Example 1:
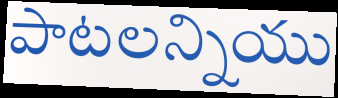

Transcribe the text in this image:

పాటలన్నియు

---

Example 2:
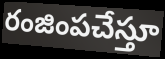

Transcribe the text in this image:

రంజింపచేస్తూ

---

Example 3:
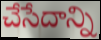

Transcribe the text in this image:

చేసేదాన్ని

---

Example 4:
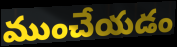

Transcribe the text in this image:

ముంచేయడం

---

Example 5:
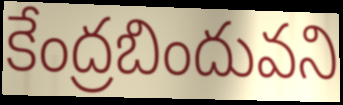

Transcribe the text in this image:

కేంద్రబిందువని